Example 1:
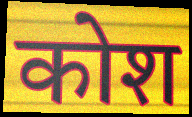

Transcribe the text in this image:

कोश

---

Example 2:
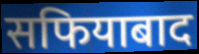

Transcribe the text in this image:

सफियाबाद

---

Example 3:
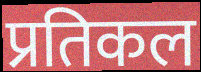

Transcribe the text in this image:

प्रतिकल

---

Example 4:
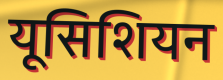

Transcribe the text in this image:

यूसिशियन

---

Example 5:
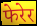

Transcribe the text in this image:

फेरेर